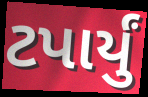
ટપાર્યું